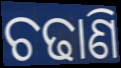
ଚଢାଣି